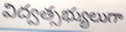
విద్వత్సభ్యులుగా